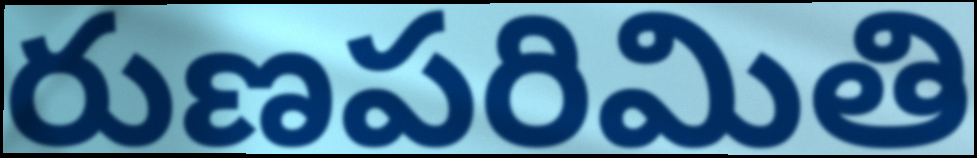
రుణపరిమితి